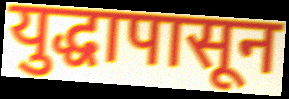
युद्धापासून